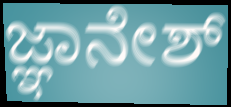
ಜ್ಞಾನೇಶ್